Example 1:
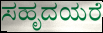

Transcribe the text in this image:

ಸಹೃದಯರೆ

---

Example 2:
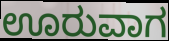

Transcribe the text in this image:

ಊರುವಾಗ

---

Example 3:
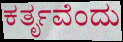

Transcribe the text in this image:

ಕರ್ತೃವೆಂದು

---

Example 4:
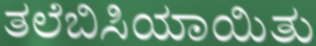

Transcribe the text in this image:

ತಲೆಬಿಸಿಯಾಯಿತು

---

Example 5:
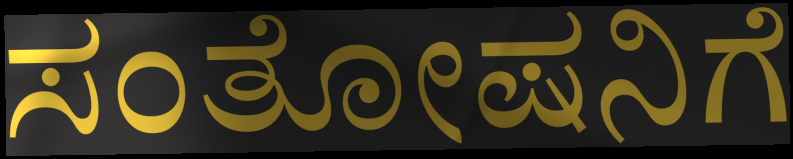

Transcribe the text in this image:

ಸಂತೋಷನಿಗೆ